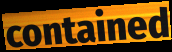
contained